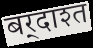
बर्दाश्त